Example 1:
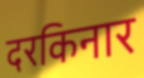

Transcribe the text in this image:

दरकिनार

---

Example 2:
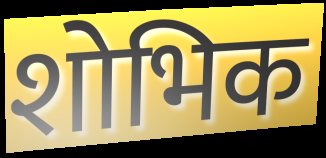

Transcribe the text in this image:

शोभिक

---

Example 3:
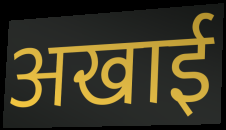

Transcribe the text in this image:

अखाई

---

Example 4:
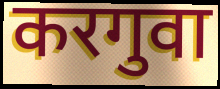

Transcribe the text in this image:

करगुवा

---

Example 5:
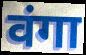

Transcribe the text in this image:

वंगा